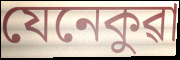
যেনেকুৱা